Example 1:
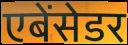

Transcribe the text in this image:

एबेंसेडर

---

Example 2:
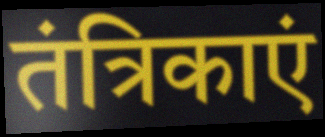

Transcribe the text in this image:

तंत्रिकाएं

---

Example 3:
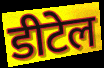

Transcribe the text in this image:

डीटेल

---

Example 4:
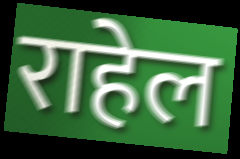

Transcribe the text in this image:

राहेल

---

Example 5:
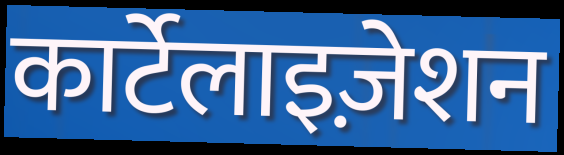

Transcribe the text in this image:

कार्टेलाइज़ेशन